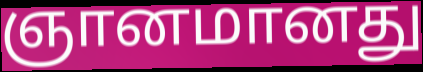
ஞானமானது